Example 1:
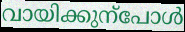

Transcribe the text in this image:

വായിക്കുന്പോൾ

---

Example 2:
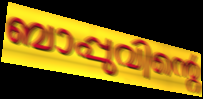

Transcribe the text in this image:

ബാപ്പുവിന്റെ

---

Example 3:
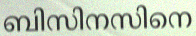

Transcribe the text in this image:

ബിസിനസിനെ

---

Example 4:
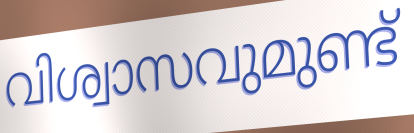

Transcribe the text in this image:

വിശ്വാസവുമുണ്ട്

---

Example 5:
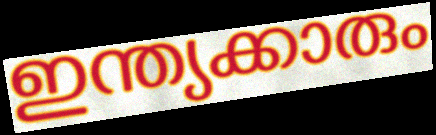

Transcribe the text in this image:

ഇന്ത്യക്കാരും